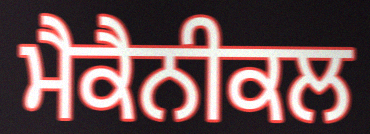
ਮੈਕੈਨੀਕਲ